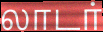
லாடர்